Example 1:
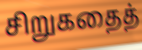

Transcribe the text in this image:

சிறுகதைத்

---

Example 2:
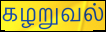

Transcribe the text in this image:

கழறுவல்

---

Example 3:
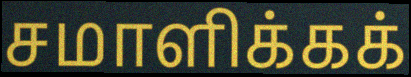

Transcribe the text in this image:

சமாளிக்கக்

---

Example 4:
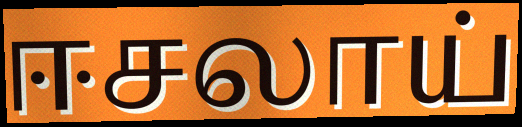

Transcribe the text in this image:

ஈசலாய்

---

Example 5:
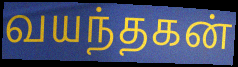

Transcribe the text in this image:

வயந்தகன்